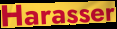
Harasser